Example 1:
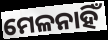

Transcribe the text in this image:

ମେଳନାହିଁ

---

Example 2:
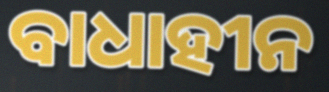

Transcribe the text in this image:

ବାଧାହୀନ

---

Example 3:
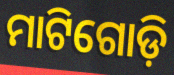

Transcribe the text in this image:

ମାଟିଗୋଡ଼ି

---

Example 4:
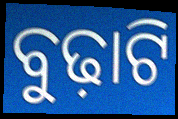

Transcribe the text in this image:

ବୁଢ଼ାଟି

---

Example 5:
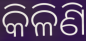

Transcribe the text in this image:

କିଳିଣି